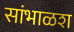
सांभाळश